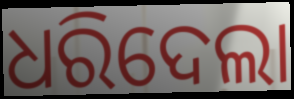
ଧରିଦେଲା